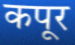
कपूर